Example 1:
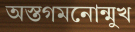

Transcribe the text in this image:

অস্তগমনোন্মুখ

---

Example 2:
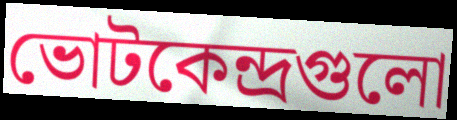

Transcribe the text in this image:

ভোটকেন্দ্রগুলো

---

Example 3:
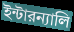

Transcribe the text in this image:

ইন্টারন্যালি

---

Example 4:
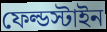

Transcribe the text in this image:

ফেল্ডস্টাইন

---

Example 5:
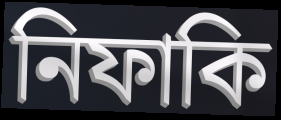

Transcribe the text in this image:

নিফাকি